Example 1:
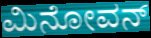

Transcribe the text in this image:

ಮಿನೋವನ್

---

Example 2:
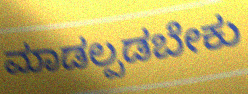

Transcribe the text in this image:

ಮಾಡಲ್ಪಡಬೇಕು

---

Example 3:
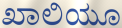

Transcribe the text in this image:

ಖಾಲಿಯೂ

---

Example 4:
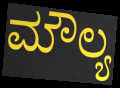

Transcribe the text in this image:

ಮೌಲ್ಯ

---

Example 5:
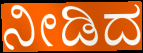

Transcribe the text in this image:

ನೀಡಿದ